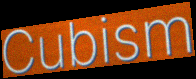
Cubism